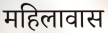
महिलावास